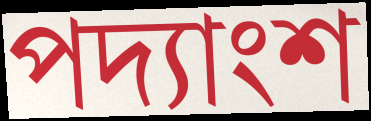
পদ্যাংশ